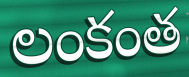
లంకంత